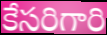
కేసరిగారి